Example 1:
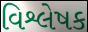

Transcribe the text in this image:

વિશ્લેષક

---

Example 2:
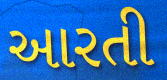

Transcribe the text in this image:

આરતી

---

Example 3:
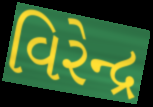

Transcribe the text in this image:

વિરેન્દ્ર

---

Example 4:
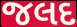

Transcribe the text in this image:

જલદ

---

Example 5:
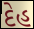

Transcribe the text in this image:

દેહ